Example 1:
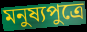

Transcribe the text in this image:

মনুষ্যপুত্রে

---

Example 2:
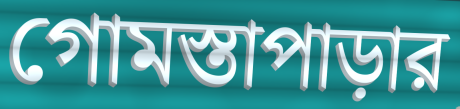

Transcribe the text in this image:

গোমস্তাপাড়ার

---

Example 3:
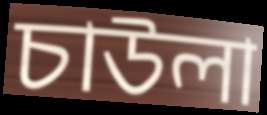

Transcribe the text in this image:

চাউলা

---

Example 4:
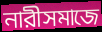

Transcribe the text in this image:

নারীসমাজে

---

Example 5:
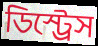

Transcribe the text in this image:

ডিস্ট্রেস